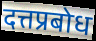
दत्तप्रबोध